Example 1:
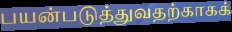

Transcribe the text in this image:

பயன்படுத்துவதற்காகக்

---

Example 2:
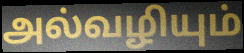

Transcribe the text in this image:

அல்வழியும்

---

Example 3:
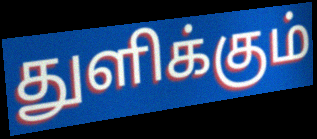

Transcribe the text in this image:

துளிக்கும்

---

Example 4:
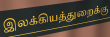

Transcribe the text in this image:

இலக்கியத்துறைக்கு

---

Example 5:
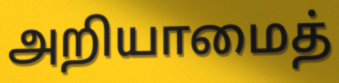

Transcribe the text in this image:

அறியாமைத்